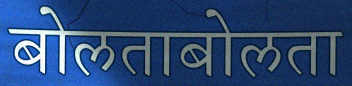
बोलताबोलता